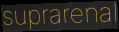
suprarenal